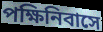
পক্ষিনিবাসে